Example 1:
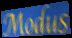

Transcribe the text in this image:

Modus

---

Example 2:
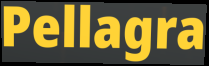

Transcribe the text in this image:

Pellagra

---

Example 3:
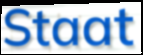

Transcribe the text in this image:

Staat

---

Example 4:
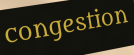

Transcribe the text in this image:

congestion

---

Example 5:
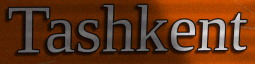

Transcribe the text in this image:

Tashkent